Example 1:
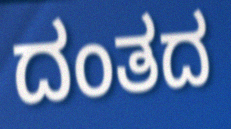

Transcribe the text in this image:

ದಂತದ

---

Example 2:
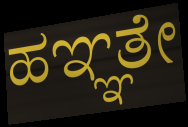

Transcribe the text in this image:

ಹಞ್ಞತೇ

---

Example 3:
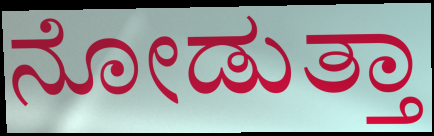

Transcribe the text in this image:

ನೋಡುತ್ತಾ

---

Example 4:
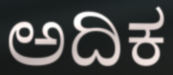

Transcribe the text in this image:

ಅದಿಕ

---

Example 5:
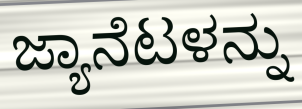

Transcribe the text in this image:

ಜ್ಯಾನೆಟಳನ್ನು